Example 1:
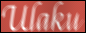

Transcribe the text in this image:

Ulaku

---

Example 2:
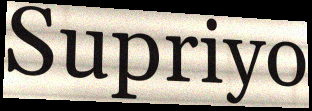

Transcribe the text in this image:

Supriyo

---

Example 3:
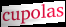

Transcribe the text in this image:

cupolas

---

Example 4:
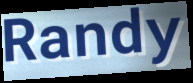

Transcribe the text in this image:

Randy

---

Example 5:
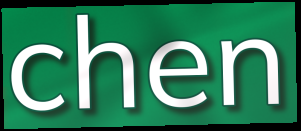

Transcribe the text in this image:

chen